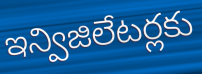
ఇన్విజిలేటర్లకు